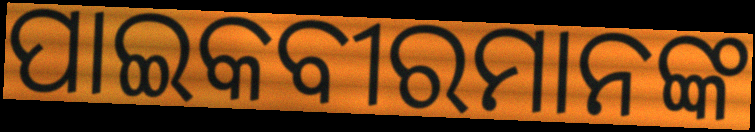
ପାଇକବୀରମାନଙ୍କ